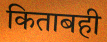
किताबही